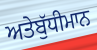
ਅਤੇਬੁੱਧੀਮਾਨ